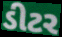
ડીટર